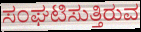
ಸಂಘಟಿಸುತ್ತಿರುವ